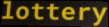
lottery